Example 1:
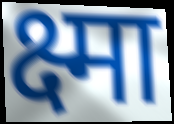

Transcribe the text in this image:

क्ष्मा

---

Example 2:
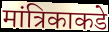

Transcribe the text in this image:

मांत्रिकाकडे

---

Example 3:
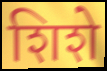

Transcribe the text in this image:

शिशे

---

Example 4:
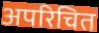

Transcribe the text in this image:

अपरिचित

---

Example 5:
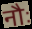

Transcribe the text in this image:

नौः